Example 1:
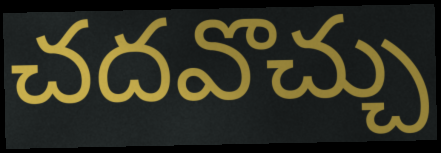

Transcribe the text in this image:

చదవొచ్చు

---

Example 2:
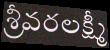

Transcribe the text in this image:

శ్రీవరలక్ష్మీ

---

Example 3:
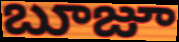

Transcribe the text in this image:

బూజూ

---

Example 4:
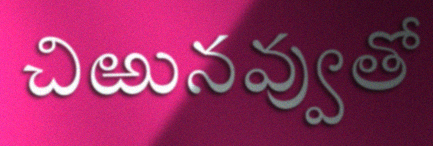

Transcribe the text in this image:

చిఱునవ్వుతో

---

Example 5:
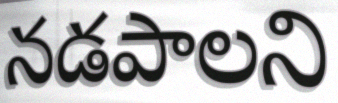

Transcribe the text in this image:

నడపాలని